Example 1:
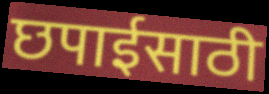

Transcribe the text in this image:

छपाईसाठी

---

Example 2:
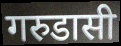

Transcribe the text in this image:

गरुडासी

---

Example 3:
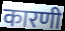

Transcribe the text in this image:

कारणी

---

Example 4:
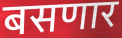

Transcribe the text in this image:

बसणार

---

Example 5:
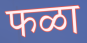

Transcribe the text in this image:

फळा